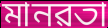
মানৱতা